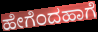
ಹೇಗೆಂದಹಾಗೆ